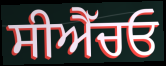
ਸੀਐੱਚਓ